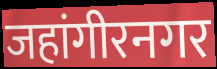
जहांगीरनगर